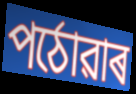
পঠোৱাৰ